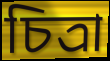
চিত্রা